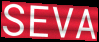
SEVA